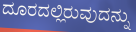
ದೂರದಲ್ಲಿರುವುದನ್ನು